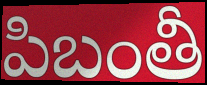
పిబంతీ